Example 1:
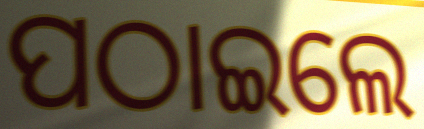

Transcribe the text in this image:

ପଠାଇଲେ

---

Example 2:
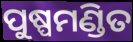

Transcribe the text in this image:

ପୁଷ୍ପମଣ୍ଡିତ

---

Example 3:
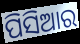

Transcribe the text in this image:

ପିସିଆର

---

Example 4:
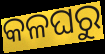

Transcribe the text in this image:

କଳଘରୁ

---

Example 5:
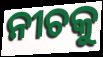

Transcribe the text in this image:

ନୀଚକୁ